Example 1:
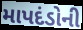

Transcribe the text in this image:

માપદંડોની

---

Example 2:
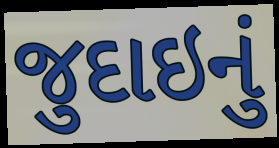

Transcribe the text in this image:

જુદાઇનું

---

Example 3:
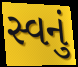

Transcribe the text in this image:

સ્વનું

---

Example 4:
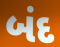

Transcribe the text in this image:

બંદ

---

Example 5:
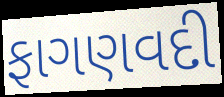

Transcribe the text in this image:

ફાગણવદી